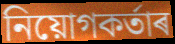
নিয়োগকৰ্তাৰ